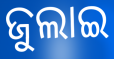
ଜୁଲାଇ